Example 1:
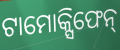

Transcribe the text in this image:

ଟାମୋକ୍ସିଫେନ୍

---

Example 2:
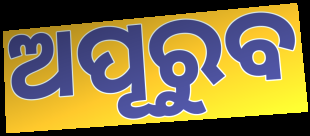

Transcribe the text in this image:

ଅପୂରୁବ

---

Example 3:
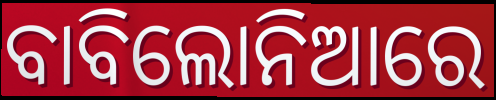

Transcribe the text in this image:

ବାବିଲୋନିଆରେ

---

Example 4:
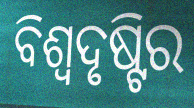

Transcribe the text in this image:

ବିଶ୍ୱଦୃଷ୍ଟିର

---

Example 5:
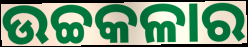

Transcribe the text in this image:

ଉଚ୍ଚକଳାର